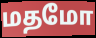
மதமோ